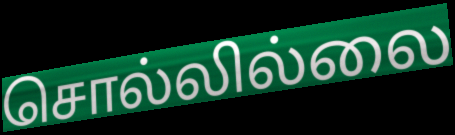
சொல்லில்லை